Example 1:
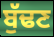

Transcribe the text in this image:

ਬੁੱਢਣ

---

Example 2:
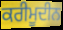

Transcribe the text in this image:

ਕਰੀਮੂਦੀਨ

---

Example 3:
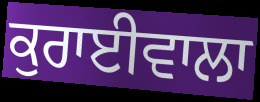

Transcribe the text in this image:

ਕੁਰਾਈਵਾਲਾ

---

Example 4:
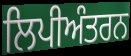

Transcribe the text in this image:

ਲਿਪੀਅੰਤਰਨ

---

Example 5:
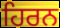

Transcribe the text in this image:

ਹਿਰਨ